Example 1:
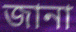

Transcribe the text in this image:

জানা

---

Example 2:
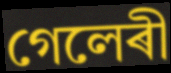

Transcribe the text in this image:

গেলেৰী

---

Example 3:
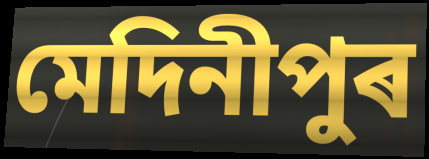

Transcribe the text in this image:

মেদিনীপুৰ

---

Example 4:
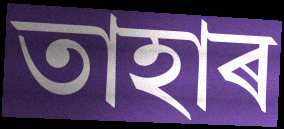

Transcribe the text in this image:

তাহাৰ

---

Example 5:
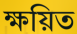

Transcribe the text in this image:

ক্ষয়িত